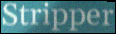
Stripper